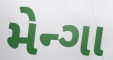
મેન્ગા